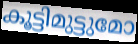
കൂട്ടിമുട്ടുമോ